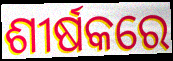
ଶୀର୍ଷକରେ